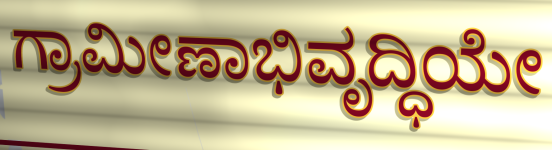
ಗ್ರಾಮೀಣಾಭಿವೃದ್ಧಿಯೇ